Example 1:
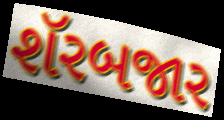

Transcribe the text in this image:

શૅરબજાર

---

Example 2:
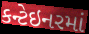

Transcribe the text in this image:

કન્ટેઇનરમાં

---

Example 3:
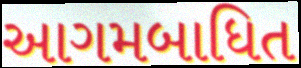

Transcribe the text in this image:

આગમબાધિત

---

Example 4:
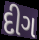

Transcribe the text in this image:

દીગ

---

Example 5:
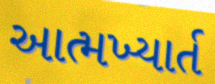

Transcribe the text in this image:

આત્મખ્યાર્ત